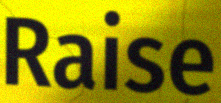
Raise